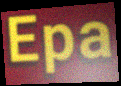
Epa